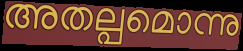
അതല്പമൊന്നു